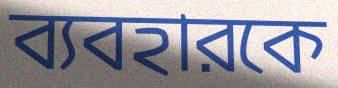
ব্যবহারকে